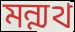
মন্মথ